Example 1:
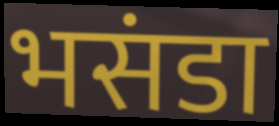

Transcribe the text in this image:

भसंडा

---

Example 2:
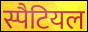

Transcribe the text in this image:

स्पैटियल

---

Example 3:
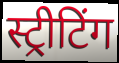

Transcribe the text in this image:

स्ट्रीटिंग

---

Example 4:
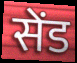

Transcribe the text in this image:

सेंड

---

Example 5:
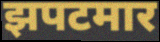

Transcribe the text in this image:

झपटमार